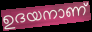
ഉദയനാണ്